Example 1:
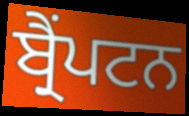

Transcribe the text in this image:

ਬ੍ਰੈਂਪਟਨ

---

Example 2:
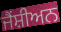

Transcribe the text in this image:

ਜੈਂਸ਼ੀਅਨ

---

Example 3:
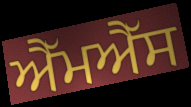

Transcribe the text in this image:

ਐੱਮਐੱਸ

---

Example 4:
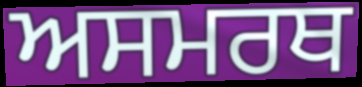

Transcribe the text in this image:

ਅਸਮਰਥ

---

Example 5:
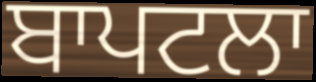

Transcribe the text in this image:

ਬਾਪਟਲਾ